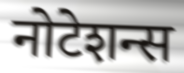
नोटेशन्स